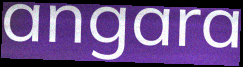
angara